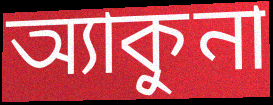
অ্যাকুনা